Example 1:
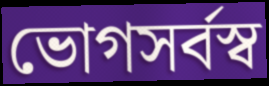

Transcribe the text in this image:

ভোগসর্বস্ব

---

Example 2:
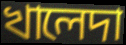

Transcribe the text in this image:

খালেদা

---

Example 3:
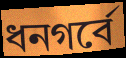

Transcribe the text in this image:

ধনগর্বে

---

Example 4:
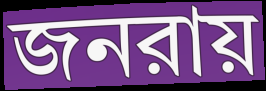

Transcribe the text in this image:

জনরায়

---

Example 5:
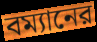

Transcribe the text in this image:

বম্যানের